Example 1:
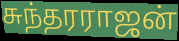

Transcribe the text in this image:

சுந்தரராஜன்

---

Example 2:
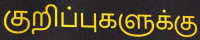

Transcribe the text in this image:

குறிப்புகளுக்கு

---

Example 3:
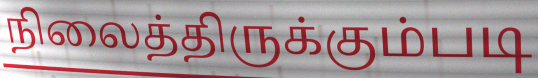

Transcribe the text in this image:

நிலைத்திருக்கும்படி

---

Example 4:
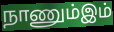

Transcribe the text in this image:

நாணும்இம்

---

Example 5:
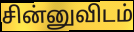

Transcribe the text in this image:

சின்னுவிடம்